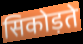
सिकोड़ते